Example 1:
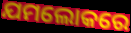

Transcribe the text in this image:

ଯମଲୋକରେ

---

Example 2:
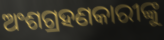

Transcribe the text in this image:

ଅଂଶଗ୍ରହଣକାରୀଙ୍କୁ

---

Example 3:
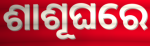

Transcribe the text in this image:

ଶାଶୂଘରେ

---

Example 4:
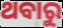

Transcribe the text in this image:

ଥବାରୁ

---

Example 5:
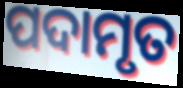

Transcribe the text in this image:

ପଦାମୃତ